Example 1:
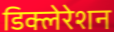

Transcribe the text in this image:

डिक्लेरेशन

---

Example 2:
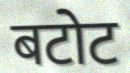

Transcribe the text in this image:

बटोट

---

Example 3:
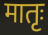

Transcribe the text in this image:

मातृः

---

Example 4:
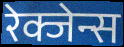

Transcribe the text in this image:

रेक्जेन्स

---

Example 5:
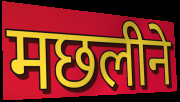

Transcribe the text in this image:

मछलीने